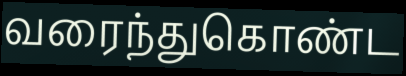
வரைந்துகொண்ட